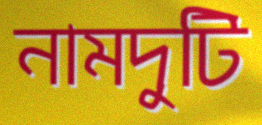
নামদুটি